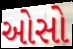
ઓસો